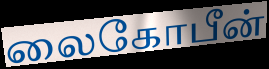
லைகோபீன்